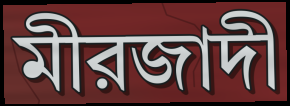
মীরজাদী